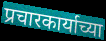
प्रचारकार्याच्या